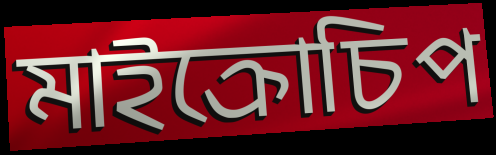
মাইক্রোচিপ